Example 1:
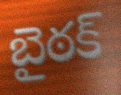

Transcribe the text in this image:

బైఠక్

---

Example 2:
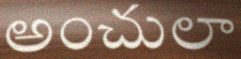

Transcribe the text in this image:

అంచులా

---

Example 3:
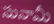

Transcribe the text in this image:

సునామీ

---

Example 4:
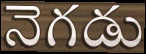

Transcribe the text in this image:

నెగడు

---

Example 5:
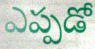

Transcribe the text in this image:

ఎప్పడో